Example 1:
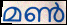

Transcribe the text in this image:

മൺ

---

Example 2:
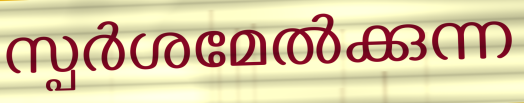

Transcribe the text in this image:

സ്പർശമേൽക്കുന്ന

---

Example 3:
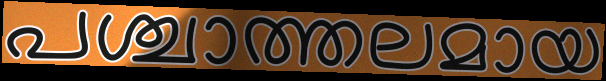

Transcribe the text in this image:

പശ്ചാത്തലമായ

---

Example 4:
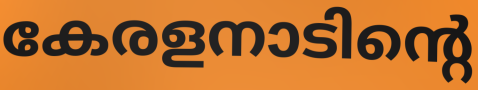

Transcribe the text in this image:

കേരളനാടിന്റെ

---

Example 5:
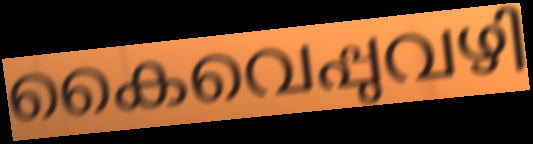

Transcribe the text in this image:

കൈവെപ്പുവഴി